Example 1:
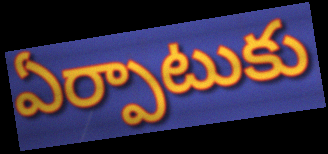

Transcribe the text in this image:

ఏర్పాటుకు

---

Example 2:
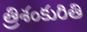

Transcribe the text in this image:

త్రిశంకురితి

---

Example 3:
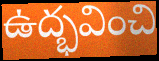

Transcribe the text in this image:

ఉద్భవించి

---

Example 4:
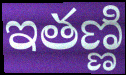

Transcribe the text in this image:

ఇతణ్ణి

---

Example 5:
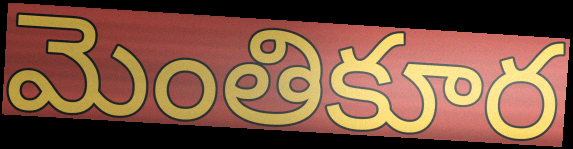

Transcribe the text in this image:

మెంతికూర